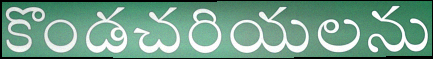
కొండచరియలను